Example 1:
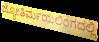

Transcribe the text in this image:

ಜ್ಯೋತಿರ್ಮಯಲಿಂಗದಲ್ಲಿ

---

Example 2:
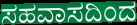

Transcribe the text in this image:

ಸಹವಾಸದಿಂದ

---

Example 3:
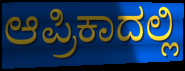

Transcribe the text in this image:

ಆಪ್ರಿಕಾದಲ್ಲಿ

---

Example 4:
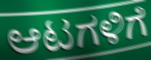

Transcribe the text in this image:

ಆಟಗಳಿಗೆ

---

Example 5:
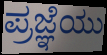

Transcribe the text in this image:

ಪ್ರಜ್ಞೆಯು